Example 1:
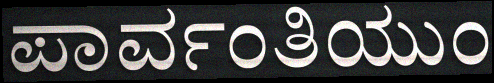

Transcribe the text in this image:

ಪಾರ್ವಂತಿಯುಂ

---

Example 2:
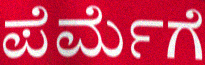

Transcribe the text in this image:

ಪೆರ್ಮೆಗೆ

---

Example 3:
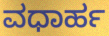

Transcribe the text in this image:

ವಧಾರ್ಹ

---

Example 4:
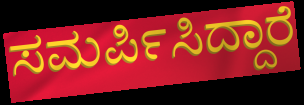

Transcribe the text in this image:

ಸಮರ್ಪಿಸಿದ್ದಾರೆ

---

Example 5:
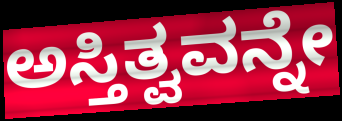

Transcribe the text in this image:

ಅಸ್ತಿತ್ವವನ್ನೇ